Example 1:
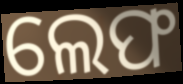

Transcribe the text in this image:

ଲେଫ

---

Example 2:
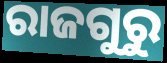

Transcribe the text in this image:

ରାଜଗୁରୁ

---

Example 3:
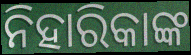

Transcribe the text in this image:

ନିହାରିକାଙ୍କ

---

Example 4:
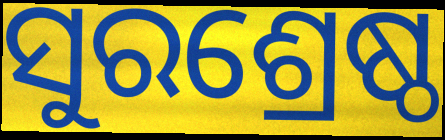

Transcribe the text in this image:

ସୁରଶ୍ରେଷ୍ଠ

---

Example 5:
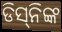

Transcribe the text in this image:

ଡିସ୍‌ନିଙ୍କ